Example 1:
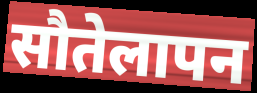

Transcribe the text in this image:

सौतेलापन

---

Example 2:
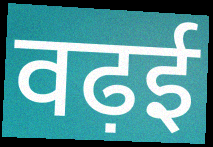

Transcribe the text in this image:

वढ़ई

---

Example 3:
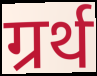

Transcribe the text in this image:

ग्रर्थ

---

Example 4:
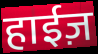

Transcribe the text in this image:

हाईज़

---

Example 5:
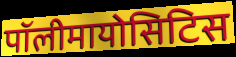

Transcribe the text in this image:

पॉलीमायोसिटिस